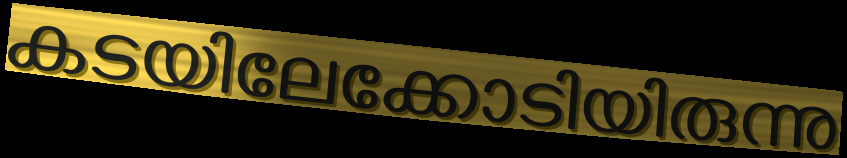
കടയിലേക്കോടിയിരുന്നു